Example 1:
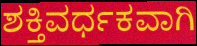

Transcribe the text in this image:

ಶಕ್ತಿವರ್ಧಕವಾಗಿ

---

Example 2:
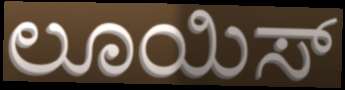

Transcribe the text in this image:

ಲೂಯಿಸ್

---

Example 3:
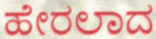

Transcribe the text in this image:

ಹೇರಲಾದ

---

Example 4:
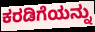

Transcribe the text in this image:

ಕರಡಿಗೆಯನ್ನು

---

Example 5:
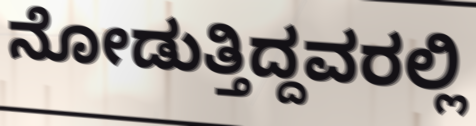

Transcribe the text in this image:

ನೋಡುತ್ತಿದ್ದವರಲ್ಲಿ